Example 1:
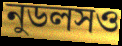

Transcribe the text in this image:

নুডলসও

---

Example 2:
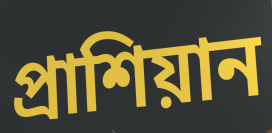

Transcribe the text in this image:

প্রাশিয়ান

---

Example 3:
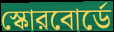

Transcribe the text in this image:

স্কোরবোর্ডে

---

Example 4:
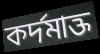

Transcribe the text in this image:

কর্দমাক্ত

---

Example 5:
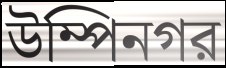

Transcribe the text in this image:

উম্পিনগর